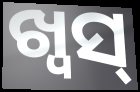
ଖ୍ୱସ୍